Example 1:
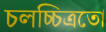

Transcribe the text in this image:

চলচ্চিত্ৰতো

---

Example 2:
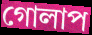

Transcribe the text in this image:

গোলাপ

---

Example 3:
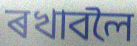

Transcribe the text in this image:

ৰখাবলৈ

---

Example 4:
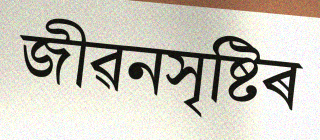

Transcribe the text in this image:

জীৱনসৃষ্টিৰ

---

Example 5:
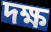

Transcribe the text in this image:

দক্ষ